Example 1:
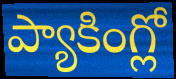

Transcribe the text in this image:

ప్యాకింగ్లో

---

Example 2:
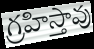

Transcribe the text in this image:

గ్రహిస్తావు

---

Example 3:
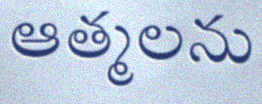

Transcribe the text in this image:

ఆత్మలను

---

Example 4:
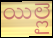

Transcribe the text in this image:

యిల్లై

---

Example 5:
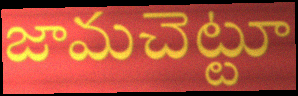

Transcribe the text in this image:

జామచెట్టూ